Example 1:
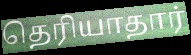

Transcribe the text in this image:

தெரியாதார்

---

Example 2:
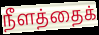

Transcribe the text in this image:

நீளத்தைக்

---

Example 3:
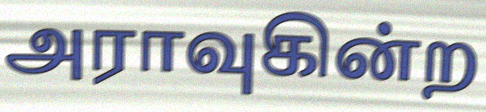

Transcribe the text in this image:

அராவுகின்ற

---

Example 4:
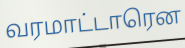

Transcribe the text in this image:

வரமாட்டாரென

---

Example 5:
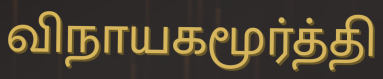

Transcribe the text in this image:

விநாயகமூர்த்தி